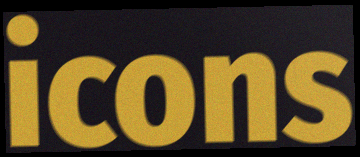
icons